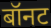
बॉनट